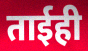
ताईही